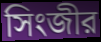
সিংজীর